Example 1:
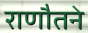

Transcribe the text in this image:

राणौतने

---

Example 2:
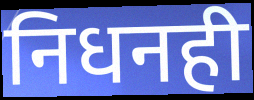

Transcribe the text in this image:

निधनही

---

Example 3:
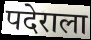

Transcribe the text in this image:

पदेराला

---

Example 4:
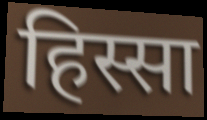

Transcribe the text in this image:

हिस्सा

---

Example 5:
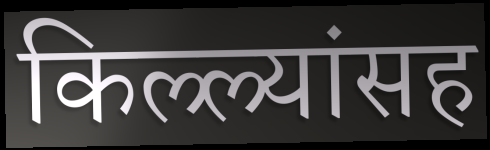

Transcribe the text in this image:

किल्ल्यांसह